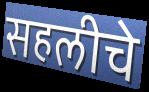
सहलीचे